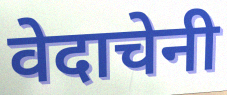
वेदाचेनी